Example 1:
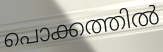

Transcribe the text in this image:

പൊക്കത്തിൽ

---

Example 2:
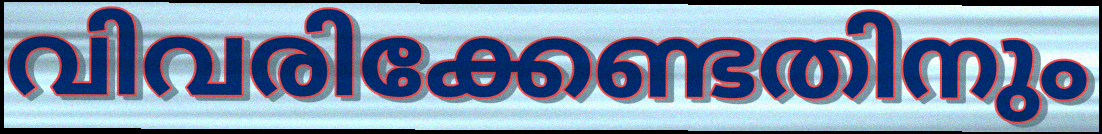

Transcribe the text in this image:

വിവരിക്കേണ്ടതിനും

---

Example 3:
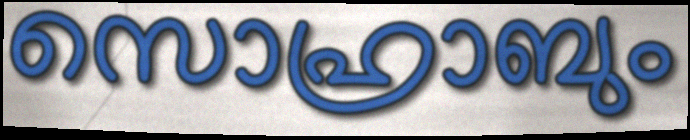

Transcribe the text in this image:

സൊഹ്രാബും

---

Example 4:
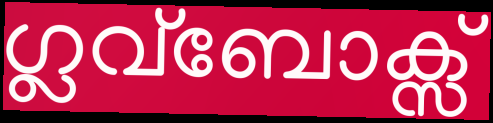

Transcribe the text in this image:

ഗ്ലവ്ബോക്സ്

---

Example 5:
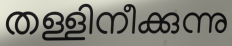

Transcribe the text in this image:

തള്ളിനീക്കുന്നു